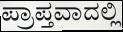
ಪ್ರಾಪ್ತವಾದಲ್ಲಿ